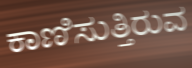
ಕಾಣಿಸುತ್ತಿರುವ